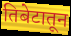
तिबेटातून